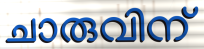
ചാരുവിന്